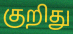
குறிது